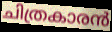
ചിത്രകാരൻ